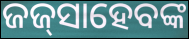
ଜଜ୍‍ସାହେବଙ୍କ